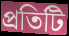
প্রতিটি